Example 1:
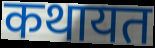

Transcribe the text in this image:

कथायत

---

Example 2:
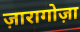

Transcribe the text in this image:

ज़ारागोज़ा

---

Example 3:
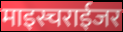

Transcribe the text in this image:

माइस्चराईजर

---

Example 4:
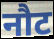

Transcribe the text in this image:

नौट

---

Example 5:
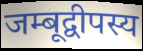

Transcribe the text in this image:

जम्बूद्वीपस्य